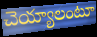
చెయ్యాలంటూ